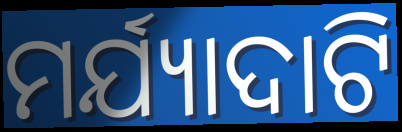
ମର୍ଯ୍ୟାଦାଟି